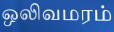
ஒலிவமரம்